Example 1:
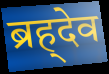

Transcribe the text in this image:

ब्रह्देव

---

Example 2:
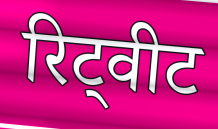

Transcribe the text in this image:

रिट्वीट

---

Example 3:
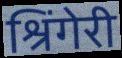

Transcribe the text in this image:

श्रिंगेरी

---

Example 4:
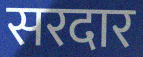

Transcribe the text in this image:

सरदार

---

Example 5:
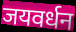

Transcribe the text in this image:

जयवर्धन